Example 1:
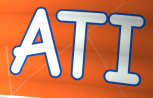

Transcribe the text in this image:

ATI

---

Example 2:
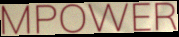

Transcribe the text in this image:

MPOWER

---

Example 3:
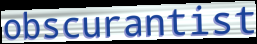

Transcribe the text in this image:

obscurantist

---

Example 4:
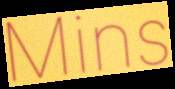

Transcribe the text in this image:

Mins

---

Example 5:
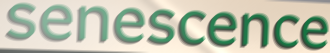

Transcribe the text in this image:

senescence